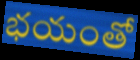
భయంతో